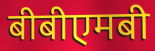
बीबीएमबी